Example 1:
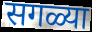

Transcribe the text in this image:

सगळ्या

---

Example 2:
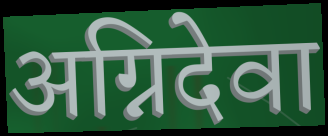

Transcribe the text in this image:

अग्निदेवा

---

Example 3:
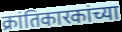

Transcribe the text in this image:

क्रांतिकारकांच्या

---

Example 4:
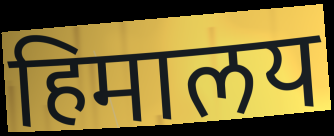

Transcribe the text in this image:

हिमालय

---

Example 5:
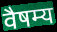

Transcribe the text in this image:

वैषम्य